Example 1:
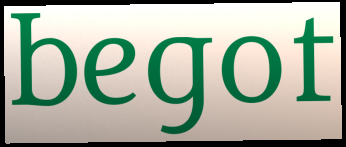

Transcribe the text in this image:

begot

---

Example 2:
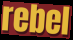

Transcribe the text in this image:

rebel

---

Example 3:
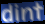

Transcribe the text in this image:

dint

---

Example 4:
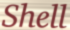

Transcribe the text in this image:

Shell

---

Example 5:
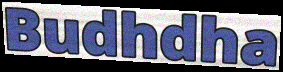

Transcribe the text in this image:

Budhdha